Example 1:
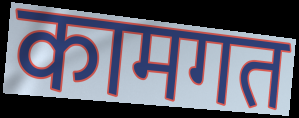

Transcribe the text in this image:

कामगत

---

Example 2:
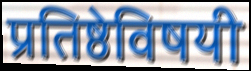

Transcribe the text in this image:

प्रतिष्ठेविषयी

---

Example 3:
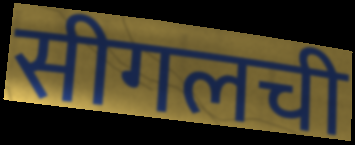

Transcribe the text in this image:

सीगलची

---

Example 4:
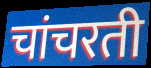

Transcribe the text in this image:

चांचरती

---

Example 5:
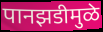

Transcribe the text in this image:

पानझडीमुळे